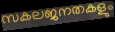
സകലജനതകളും